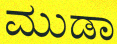
ಮುಡಾ